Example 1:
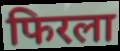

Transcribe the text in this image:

फिरला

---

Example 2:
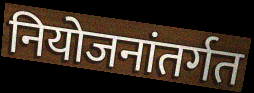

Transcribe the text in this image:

नियोजनांतर्गत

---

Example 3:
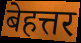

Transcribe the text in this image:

बेहत्तर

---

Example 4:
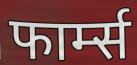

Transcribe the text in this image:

फार्म्स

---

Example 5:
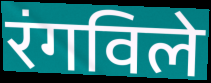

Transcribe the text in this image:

रंगविले